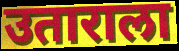
उताराला